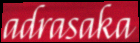
adrasaka